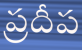
ప్రదీప